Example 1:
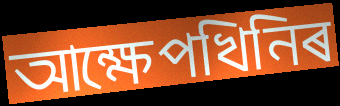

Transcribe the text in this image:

আক্ষেপখিনিৰ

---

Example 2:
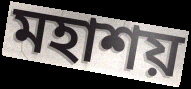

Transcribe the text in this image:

মহাশয়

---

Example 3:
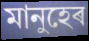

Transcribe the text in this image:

মানুহেৰ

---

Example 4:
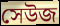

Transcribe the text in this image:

সেউজ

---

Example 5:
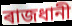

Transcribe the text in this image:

ৰাজধানী